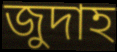
জুদাহ